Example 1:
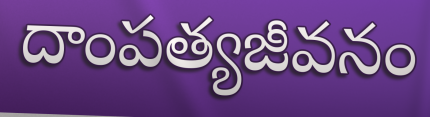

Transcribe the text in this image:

దాంపత్యజీవనం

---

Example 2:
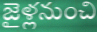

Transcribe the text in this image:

జైళ్లనుంచి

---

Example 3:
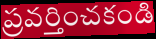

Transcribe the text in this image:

ప్రవర్తించకండి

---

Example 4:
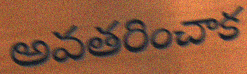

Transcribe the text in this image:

అవతరించాక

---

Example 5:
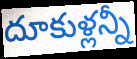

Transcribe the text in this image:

దూకుళ్లన్నీ